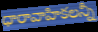
ధారావాహికలన్నీ